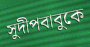
সুদীপবাবুকে